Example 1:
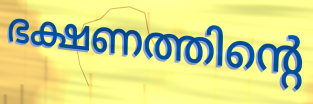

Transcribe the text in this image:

ഭക്ഷണത്തിന്റെ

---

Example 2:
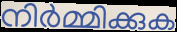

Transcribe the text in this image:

നിർമ്മിക്കുക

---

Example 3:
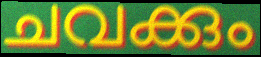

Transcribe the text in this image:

ചവക്കും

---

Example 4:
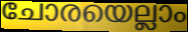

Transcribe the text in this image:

ചോരയെല്ലാം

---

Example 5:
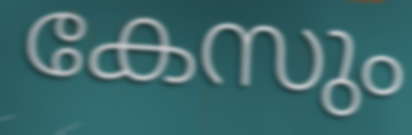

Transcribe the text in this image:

കേസും